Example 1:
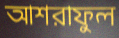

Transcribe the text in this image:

আশরাফুল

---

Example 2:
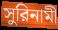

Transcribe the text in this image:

সুরিনামী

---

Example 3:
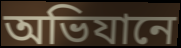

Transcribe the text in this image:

অভিযানে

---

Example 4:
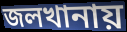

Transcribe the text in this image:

জলখানায়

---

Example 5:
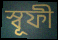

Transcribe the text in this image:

স্বূফী